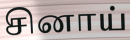
சினாய்